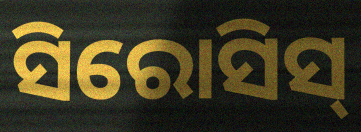
ସିରୋସିସ୍